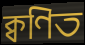
ক্বণিত